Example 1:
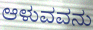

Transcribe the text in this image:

ಆಳುವವನು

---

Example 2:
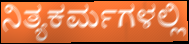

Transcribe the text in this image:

ನಿತ್ಯಕರ್ಮಗಳಲ್ಲಿ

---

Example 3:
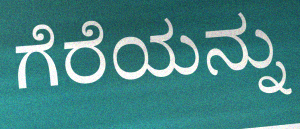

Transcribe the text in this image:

ಗೆರೆಯನ್ನು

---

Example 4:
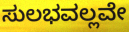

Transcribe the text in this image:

ಸುಲಭವಲ್ಲವೇ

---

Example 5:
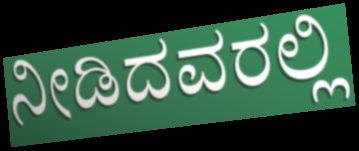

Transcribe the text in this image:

ನೀಡಿದವರಲ್ಲಿ